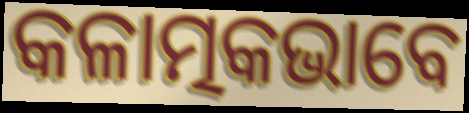
କଳାତ୍ମକଭାବେ